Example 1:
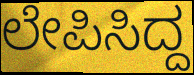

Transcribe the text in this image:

ಲೇಪಿಸಿದ್ದ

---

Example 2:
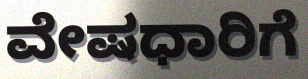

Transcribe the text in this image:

ವೇಷಧಾರಿಗೆ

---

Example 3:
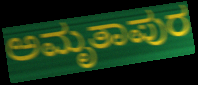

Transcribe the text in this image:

ಅಮೃತಾಪುರ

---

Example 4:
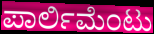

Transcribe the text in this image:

ಪಾರ್ಲಿಮೆಂಟು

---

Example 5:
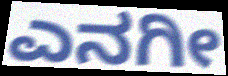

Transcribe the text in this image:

ಎನಗೀ